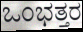
ಒಂಭತ್ತರ